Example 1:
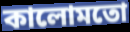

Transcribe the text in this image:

কালোমতো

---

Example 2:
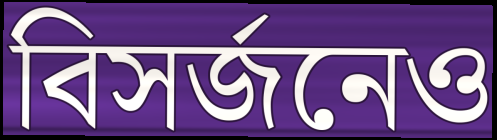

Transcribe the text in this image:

বিসর্জনেও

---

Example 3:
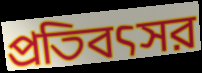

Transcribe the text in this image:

প্রতিবৎসর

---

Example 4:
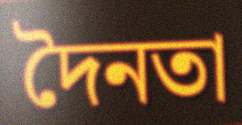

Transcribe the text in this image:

দৈনতা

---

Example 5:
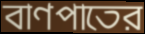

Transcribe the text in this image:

বাণপাতের